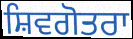
ਸ਼ਿਵਗੋਤਰਾ